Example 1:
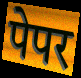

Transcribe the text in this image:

पेपर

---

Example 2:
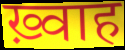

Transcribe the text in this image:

ख़्वाह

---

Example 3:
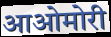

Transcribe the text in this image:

आओमोरी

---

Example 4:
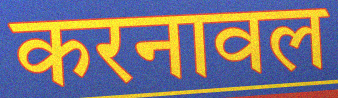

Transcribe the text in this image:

करनावल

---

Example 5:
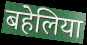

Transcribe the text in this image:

बहेलिया